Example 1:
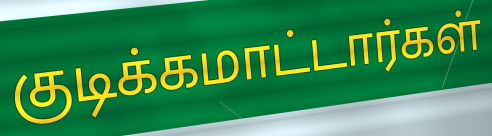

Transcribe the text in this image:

குடிக்கமாட்டார்கள்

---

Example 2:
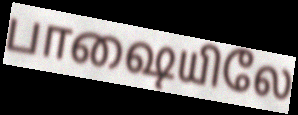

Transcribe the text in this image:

பாஷையிலே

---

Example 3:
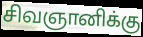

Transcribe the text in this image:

சிவஞானிக்கு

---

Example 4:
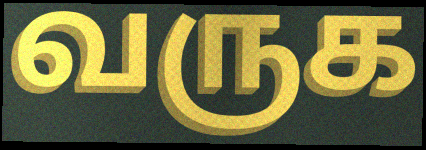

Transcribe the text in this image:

வருக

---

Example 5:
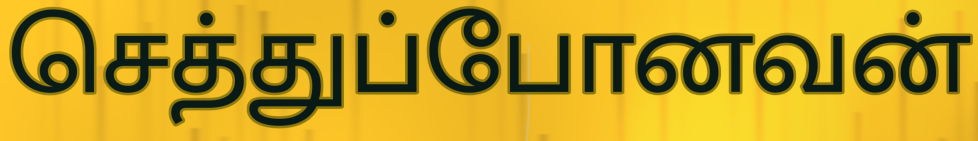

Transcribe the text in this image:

செத்துப்போனவன்